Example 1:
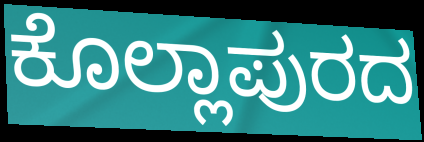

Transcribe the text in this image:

ಕೊಲ್ಲಾಪುರದ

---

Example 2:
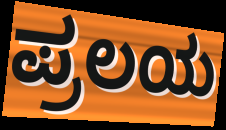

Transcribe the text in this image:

ಪ್ರಲಯ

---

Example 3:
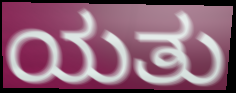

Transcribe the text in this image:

ಯತು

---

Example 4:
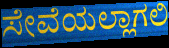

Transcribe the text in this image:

ಸೇವೆಯಲ್ಲಾಗಲಿ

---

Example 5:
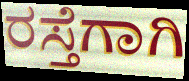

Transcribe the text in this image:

ರಸ್ತೆಗಾಗಿ